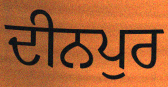
ਦੀਨਪੁਰ